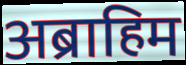
अब्राहिम